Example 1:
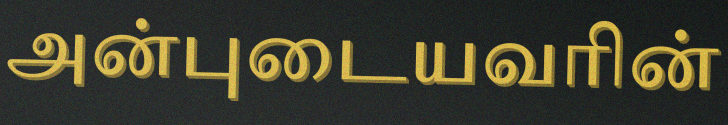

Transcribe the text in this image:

அன்புடையவரின்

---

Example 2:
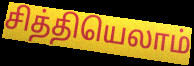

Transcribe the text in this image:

சித்தியெலாம்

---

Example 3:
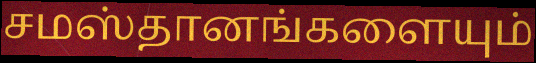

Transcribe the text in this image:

சமஸ்தானங்களையும்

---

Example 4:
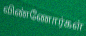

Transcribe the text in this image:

விண்ணோர்கள்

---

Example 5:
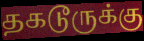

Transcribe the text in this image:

தகடூருக்கு